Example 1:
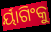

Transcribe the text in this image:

ର୍ୟାଗିଂକୁ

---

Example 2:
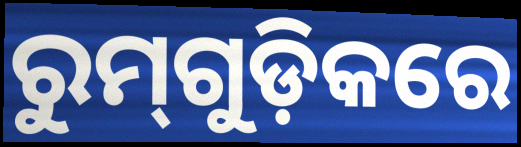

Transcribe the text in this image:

ରୁମ୍‌ଗୁଡ଼ିକରେ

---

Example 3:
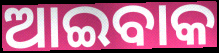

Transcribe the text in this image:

ଆଇବାକ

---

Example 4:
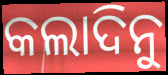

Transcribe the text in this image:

କଲାଦିନୁ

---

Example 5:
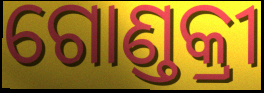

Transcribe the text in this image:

ଗୋଣ୍ଡକ୍ରୀ